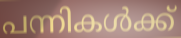
പന്നികൾക്ക്